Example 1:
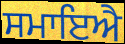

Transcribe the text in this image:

ਸਮਾਇਐ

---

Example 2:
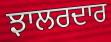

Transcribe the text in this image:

ਝਾਲਰਦਾਰ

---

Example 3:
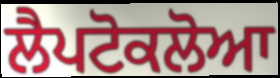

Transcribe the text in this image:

ਲੈਪਟੋਕਲੋਆ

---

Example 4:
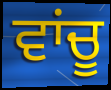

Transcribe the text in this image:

ਵਾਂਚੂ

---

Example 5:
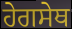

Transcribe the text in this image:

ਹੇਗਸੇਥ